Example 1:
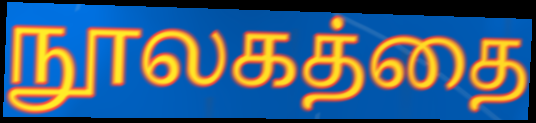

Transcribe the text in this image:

நூலகத்தை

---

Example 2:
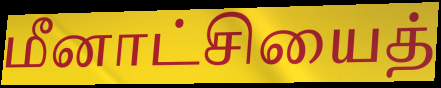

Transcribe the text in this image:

மீனாட்சியைத்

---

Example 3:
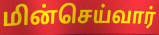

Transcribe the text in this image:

மின்செய்வார்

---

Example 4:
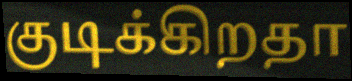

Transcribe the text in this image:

குடிக்கிறதா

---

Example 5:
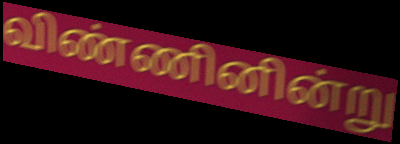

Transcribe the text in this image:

விண்ணினின்று